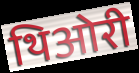
थिओरी